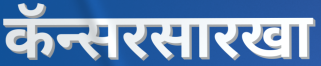
कॅन्सरसारखा